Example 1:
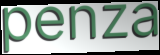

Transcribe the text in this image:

penza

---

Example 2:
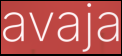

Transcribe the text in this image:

avaja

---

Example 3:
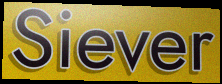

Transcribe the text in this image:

Siever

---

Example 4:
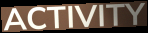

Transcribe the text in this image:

ACTIVITY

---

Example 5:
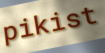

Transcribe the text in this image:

pikist